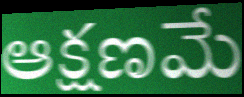
ఆక్షణమే